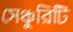
সেঞ্চুরিটি